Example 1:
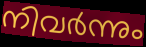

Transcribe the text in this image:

നിവർന്നും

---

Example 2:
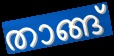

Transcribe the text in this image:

താങ്ങ്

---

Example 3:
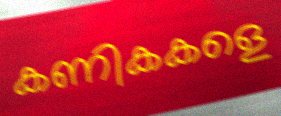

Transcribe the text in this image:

കണികകളെ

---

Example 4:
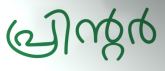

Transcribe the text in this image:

പ്രിന്റർ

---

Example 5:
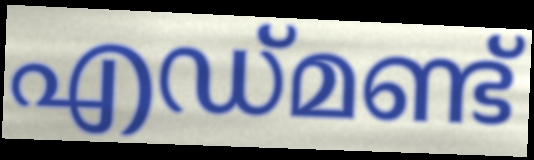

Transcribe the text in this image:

എഡ്മണ്ട്